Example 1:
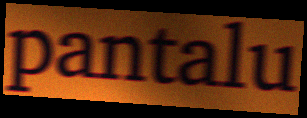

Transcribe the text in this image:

pantalu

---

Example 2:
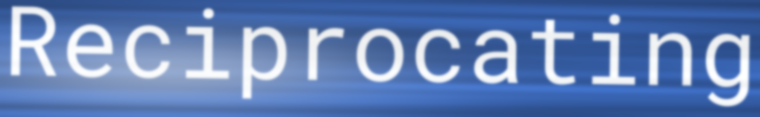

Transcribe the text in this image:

Reciprocating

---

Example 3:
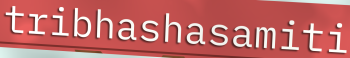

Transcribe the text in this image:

tribhashasamiti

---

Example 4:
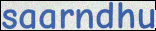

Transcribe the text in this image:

saarndhu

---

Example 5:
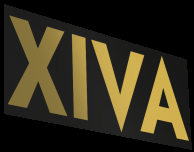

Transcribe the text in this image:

XIVA